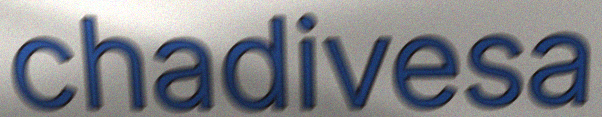
chadivesa